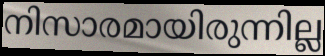
നിസാരമായിരുന്നില്ല